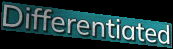
Differentiated